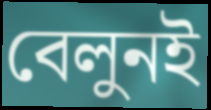
বেলুনই